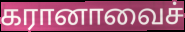
கரானாவைச்